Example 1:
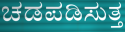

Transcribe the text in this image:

ಚಡಪಡಿಸುತ್ತ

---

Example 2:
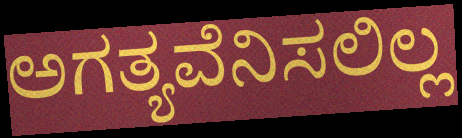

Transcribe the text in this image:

ಅಗತ್ಯವೆನಿಸಲಿಲ್ಲ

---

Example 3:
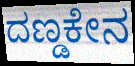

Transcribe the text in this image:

ದಣ್ಡಕೇನ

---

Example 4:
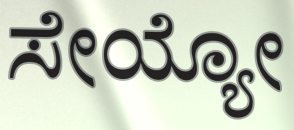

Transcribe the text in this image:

ಸೇಯ್ಯೋ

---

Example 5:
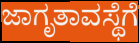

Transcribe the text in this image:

ಜಾಗೃತಾವಸ್ಥೆಗೆ